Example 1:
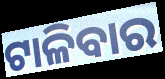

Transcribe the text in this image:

ଟାଳିବାର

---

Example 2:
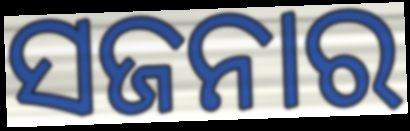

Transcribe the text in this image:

ସଜନାର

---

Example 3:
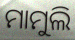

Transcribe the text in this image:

ମାମୁଲି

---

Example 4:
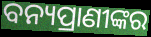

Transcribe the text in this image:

ବନ୍ୟପ୍ରାଣୀଙ୍କର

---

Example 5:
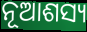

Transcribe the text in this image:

ନୂଆଶସ୍ୟ